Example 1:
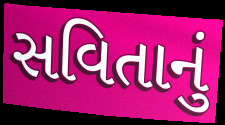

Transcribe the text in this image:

સવિતાનું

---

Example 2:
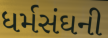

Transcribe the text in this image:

ધર્મસંઘની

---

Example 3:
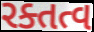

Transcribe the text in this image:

રક્તત્વ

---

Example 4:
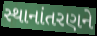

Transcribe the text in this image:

સ્થાનાંતરણને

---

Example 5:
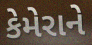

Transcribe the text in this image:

કેમેરાને